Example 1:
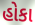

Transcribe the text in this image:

હોકા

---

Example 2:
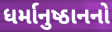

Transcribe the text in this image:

ધર્માનુષ્ઠાનનો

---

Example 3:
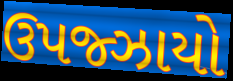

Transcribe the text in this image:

ઉપજ્ઝાયો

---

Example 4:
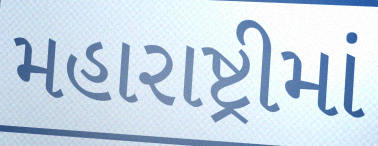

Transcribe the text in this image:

મહારાષ્ટ્રીમાં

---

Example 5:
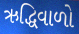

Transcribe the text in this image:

ઋદ્ધિવાળો